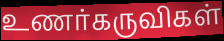
உணர்கருவிகள்